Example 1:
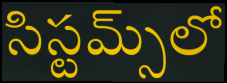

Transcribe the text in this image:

సిస్టమ్స్‌లో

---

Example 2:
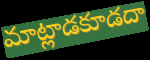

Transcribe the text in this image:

మాట్లాడకూడదా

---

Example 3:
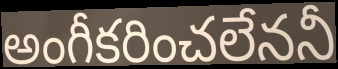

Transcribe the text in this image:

అంగీకరించలేననీ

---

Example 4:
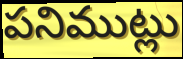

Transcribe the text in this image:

పనిముట్లు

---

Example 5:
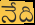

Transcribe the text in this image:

నేది